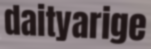
daityarige